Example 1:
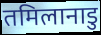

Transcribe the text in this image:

तमिलानाडु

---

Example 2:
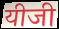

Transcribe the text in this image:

यीजी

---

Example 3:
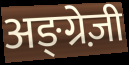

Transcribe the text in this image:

अङ्ग्रेज़ी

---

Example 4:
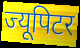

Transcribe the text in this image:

ज्यूपिटर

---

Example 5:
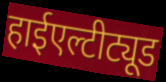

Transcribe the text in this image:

हाईएल्टीट्यूड